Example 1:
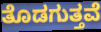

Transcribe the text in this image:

ತೊಡಗುತ್ತವೆ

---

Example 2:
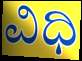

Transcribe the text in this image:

ವಿಧಿ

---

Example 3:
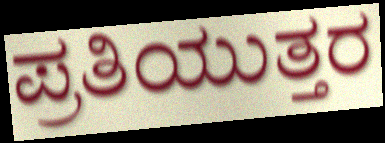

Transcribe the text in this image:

ಪ್ರತಿಯುತ್ತರ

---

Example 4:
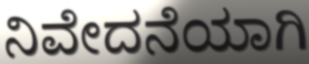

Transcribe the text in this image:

ನಿವೇದನೆಯಾಗಿ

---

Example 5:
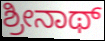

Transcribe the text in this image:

ಶ್ರೀನಾಥ್